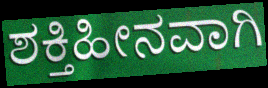
ಶಕ್ತಿಹೀನವಾಗಿ